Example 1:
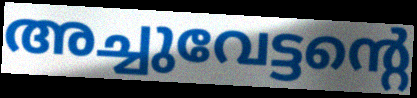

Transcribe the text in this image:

അച്ചുവേട്ടന്റെ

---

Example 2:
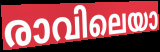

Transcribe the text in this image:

രാവിലെയാ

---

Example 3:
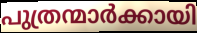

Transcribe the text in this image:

പുത്രന്മാർക്കായി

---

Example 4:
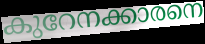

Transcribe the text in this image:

കുറേനക്കാരനെ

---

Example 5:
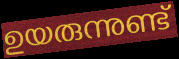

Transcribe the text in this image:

ഉയരുന്നുണ്ട്